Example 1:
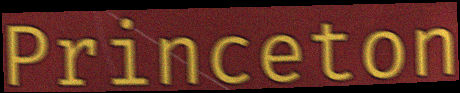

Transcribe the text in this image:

Princeton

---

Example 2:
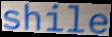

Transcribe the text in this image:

shile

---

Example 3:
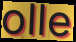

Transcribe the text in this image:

olle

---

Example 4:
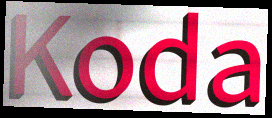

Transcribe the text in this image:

Koda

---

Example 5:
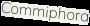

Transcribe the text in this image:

Commiphora